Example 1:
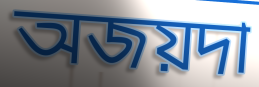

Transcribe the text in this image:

অজয়দা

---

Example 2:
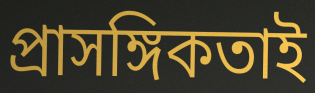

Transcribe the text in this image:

প্রাসঙ্গিকতাই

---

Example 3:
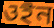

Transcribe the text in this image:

ওইন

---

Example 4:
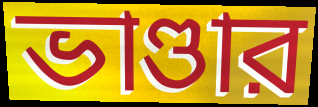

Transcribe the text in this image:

ভাণ্ডার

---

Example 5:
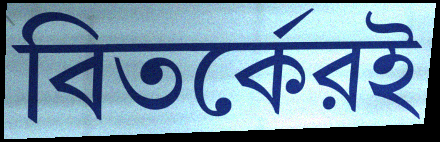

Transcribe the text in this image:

বিতর্কেরই